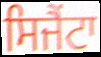
ਸਿਜੈਂਟਾ